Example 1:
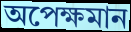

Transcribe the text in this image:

অপেক্ষমান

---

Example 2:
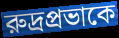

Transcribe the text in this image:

রুদ্রপ্রভাকে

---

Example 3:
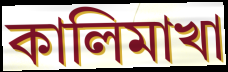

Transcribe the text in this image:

কালিমাখা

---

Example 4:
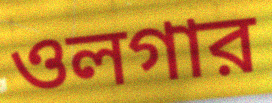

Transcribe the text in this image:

ওলগার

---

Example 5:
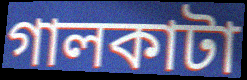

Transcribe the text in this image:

গালকাটা